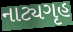
નાટ્યગૃહ